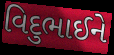
વિદુભાઈને